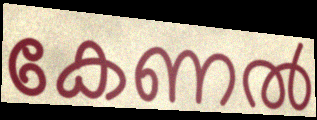
കേണൽ